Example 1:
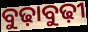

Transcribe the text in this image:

ବୁଢ଼ାବୁଢ଼ୀ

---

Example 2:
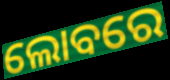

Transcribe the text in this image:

ଲୋବରେ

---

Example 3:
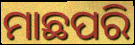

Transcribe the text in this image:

ମାଛପରି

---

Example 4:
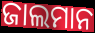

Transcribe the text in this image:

ଜାଲମାନ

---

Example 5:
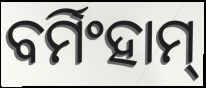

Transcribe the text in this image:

ବର୍ମିଂହାମ୍